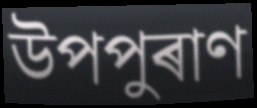
উপপুৰাণ